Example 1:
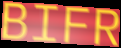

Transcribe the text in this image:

BIFR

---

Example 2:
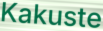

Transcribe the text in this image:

Kakuste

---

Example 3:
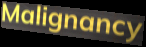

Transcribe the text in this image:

Malignancy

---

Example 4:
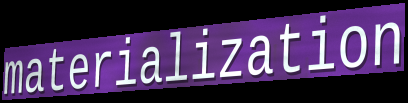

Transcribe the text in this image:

materialization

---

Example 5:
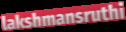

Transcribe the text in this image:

lakshmansruthi